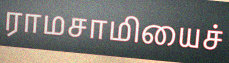
ராமசாமியைச்